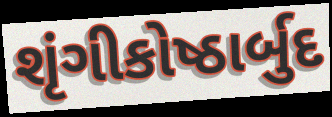
શૃંગીકોષ્ઠાર્બુદ